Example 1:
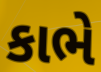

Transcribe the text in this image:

કાભે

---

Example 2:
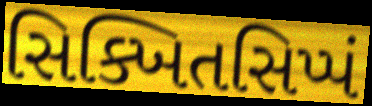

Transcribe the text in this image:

સિક્ખિતસિપ્પં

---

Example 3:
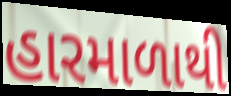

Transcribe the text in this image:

હારમાળાથી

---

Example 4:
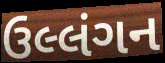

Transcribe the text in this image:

ઉલ્લંગન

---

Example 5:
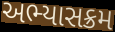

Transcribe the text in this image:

અભ્યાસક્રમ